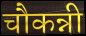
चौकन्नी